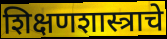
शिक्षणशास्त्राचे